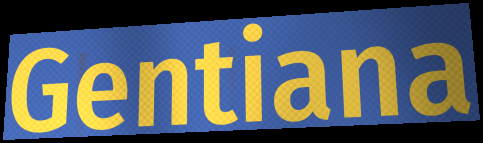
Gentiana